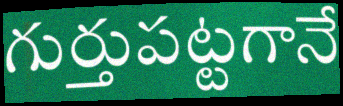
గుర్తుపట్టగానే